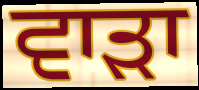
ਵਾੜਾ